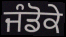
ਜੰਡੋਕੇ